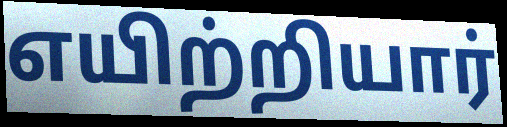
எயிற்றியார்